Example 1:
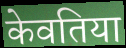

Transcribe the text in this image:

केवतिया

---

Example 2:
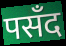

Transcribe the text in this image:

पसँद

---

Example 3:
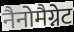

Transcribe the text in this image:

नैनोमैग्नेट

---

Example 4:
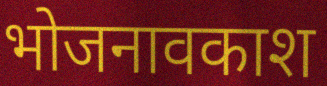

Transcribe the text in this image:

भोजनावकाश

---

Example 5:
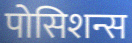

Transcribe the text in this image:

पोसिशन्स